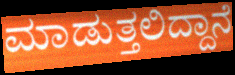
ಮಾಡುತ್ತಲಿದ್ದಾನೆ